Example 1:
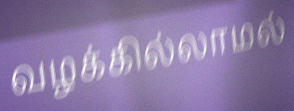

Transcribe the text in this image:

வழக்கில்லாமல்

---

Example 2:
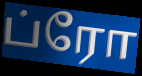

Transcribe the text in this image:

ப்ரோ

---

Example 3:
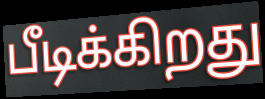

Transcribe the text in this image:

பீடிக்கிறது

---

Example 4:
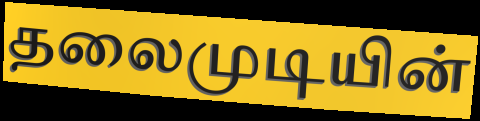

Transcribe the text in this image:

தலைமுடியின்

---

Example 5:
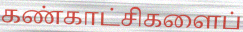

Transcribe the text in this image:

கண்காட்சிகளைப்